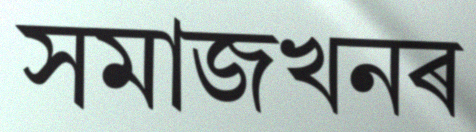
সমাজখনৰ